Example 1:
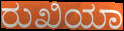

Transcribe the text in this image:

ರುಖಿಯಾ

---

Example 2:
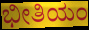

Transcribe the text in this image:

ಭೀತಿಯಂ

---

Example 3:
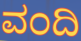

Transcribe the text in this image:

ವಂದಿ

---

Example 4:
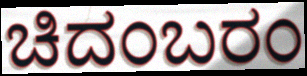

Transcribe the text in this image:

ಚಿದಂಬರಂ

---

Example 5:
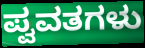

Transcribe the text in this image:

ಪ್ವವತಗಳು